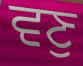
ਵਣੁ